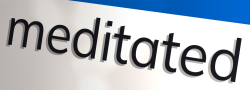
meditated